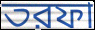
তরফা